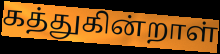
கத்துகின்றாள்